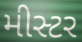
મીસ્ટર